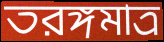
তরঙ্গমাত্র